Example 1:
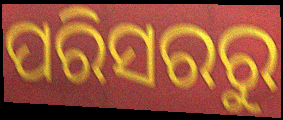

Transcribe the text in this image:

ପରିସରରୁ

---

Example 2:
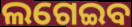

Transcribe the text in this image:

ଲଗେଇବ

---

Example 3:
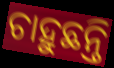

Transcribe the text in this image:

ଚାହୁଛନ୍ତି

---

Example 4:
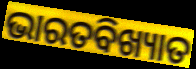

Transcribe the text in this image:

ଭାରତବିଖ୍ୟାତ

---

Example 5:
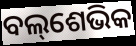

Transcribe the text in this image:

ବଲ୍‌ଶେଭିକ